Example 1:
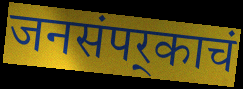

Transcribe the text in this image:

जनसंपर्काचं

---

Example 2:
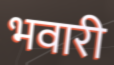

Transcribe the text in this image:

भवारी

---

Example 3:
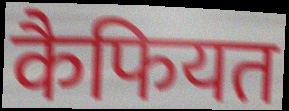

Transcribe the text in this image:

कैफियत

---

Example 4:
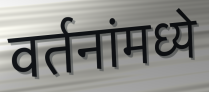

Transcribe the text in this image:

वर्तनांमध्ये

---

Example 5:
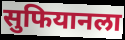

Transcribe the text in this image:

सुफियानला